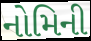
નોમિની